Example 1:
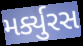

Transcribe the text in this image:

મર્ક્યુરસ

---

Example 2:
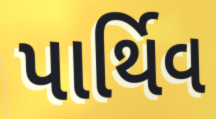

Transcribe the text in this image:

પાર્થિવ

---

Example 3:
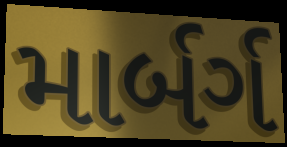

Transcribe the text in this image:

માર્બર્ગ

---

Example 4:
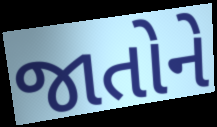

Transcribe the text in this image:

જાતોને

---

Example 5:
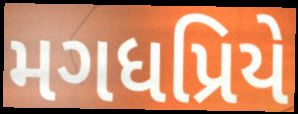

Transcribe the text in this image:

મગધપ્રિયે